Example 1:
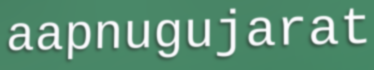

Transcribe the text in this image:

aapnugujarat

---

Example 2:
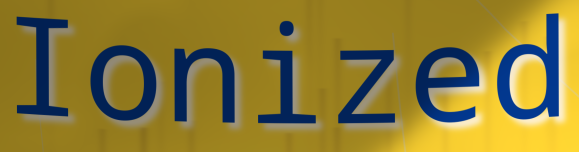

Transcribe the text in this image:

Ionized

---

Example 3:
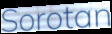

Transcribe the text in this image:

Sorotan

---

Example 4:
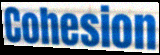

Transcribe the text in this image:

Cohesion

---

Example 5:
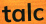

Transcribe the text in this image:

talc